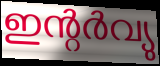
ഇന്റർവ്യു